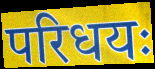
परिधयः